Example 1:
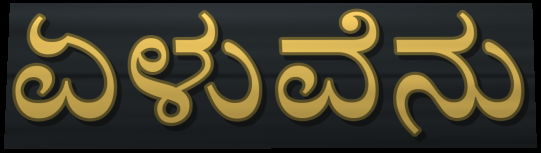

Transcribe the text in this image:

ಏಳುವೆನು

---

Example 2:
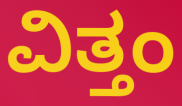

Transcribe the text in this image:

ವಿತ್ತಂ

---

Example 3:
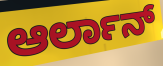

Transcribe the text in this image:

ಆರ್ಲಾನ್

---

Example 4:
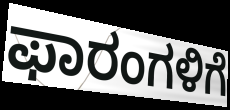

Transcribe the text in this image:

ಫಾರಂಗಳಿಗೆ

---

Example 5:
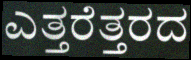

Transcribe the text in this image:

ಎತ್ತರೆತ್ತರದ